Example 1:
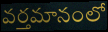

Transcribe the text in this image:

వర్తమానంలో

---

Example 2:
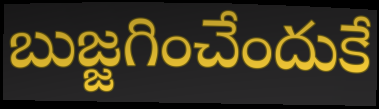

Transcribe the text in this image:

బుజ్జగించేందుకే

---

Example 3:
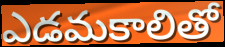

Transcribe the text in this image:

ఎడమకాలితో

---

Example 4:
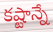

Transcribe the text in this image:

కష్టాన్నే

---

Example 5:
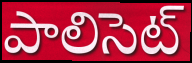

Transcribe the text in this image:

పాలిసెట్